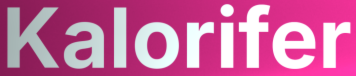
Kalorifer